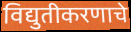
विद्युतीकरणाचे